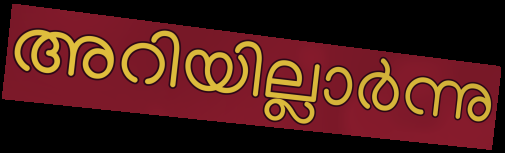
അറിയില്ലാർന്നു